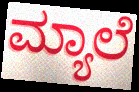
ಮ್ಯಾಲೆ